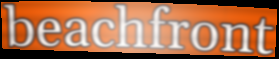
beachfront